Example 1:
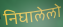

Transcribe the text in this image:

निघालेलो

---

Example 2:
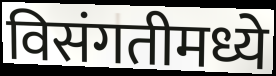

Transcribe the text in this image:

विसंगतीमध्ये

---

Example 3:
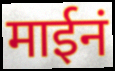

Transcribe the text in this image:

माईनं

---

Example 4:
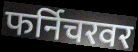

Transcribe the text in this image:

फर्निचरवर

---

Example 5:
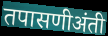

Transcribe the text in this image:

तपासणीअंती